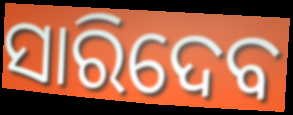
ସାରିଦେବ